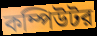
কম্পিউটর